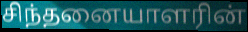
சிந்தனையாளரின்